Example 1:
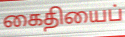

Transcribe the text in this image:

கைதியைப்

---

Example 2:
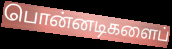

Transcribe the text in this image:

பொன்னடிகளைப்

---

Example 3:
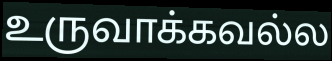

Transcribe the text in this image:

உருவாக்கவல்ல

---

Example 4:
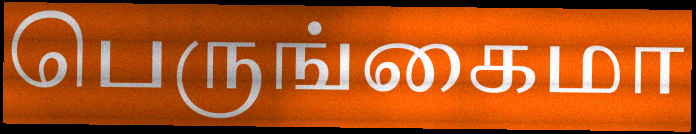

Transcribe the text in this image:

பெருங்கைமா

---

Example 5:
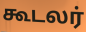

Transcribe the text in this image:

கூடலர்